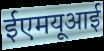
ईएमयूआई